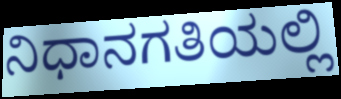
ನಿಧಾನಗತಿಯಲ್ಲಿ